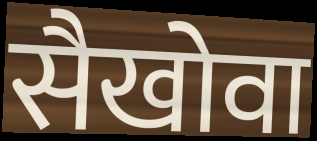
सैखोवा